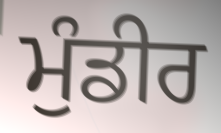
ਮੁੰਡੀਰ